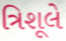
ત્રિશૂલે